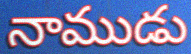
నాముడు